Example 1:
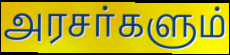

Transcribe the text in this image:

அரசர்களும்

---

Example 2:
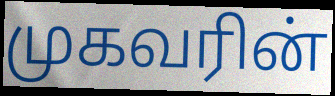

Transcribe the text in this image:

முகவரின்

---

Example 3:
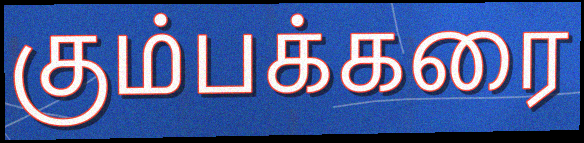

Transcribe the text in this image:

கும்பக்கரை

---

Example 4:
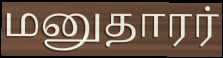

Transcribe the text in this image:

மனுதாரர்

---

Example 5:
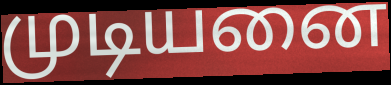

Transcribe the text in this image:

முடியனை